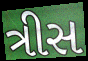
ત્રીસ